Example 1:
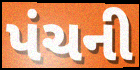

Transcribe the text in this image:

પંચની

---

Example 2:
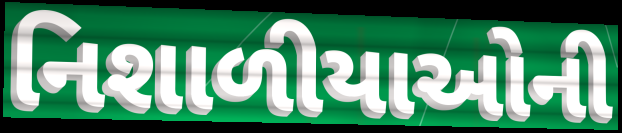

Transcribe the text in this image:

નિશાળીયાઓની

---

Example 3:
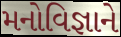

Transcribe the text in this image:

મનોવિજ્ઞાને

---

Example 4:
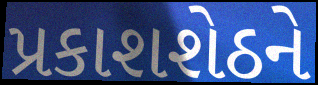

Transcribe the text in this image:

પ્રકાશશેઠને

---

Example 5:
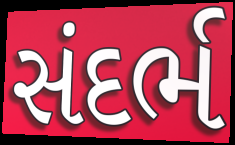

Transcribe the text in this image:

સંદર્ભ